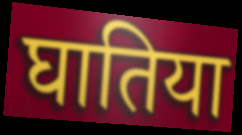
घातिया